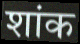
शांक